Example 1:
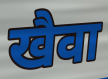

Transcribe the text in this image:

खैवा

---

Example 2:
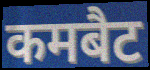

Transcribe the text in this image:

कमबैट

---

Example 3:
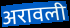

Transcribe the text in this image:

अरावली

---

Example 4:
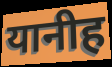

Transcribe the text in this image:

यानीह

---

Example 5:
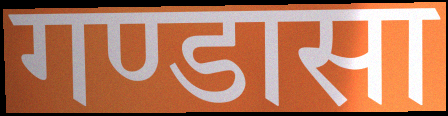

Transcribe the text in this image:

गण्डासा